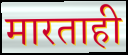
मारताही